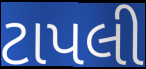
ટાપલી